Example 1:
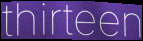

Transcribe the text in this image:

thirteen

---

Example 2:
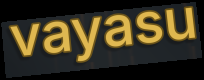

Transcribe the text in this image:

vayasu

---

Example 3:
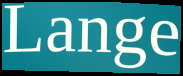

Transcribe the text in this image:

Lange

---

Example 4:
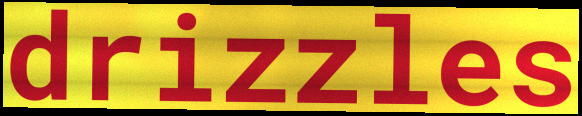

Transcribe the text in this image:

drizzles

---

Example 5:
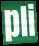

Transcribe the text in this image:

pli